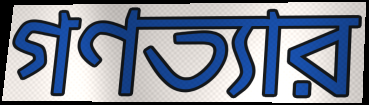
গণত্যার